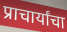
प्राचार्यांचा